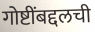
गोष्टींबद्दलची